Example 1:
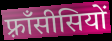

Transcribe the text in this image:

फ़्राँसीसियों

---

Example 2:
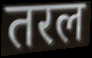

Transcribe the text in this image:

तरल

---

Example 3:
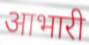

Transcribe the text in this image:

आभारी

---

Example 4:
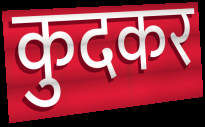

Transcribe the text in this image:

कुदकर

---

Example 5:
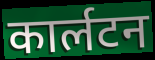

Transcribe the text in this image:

कार्लटन